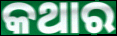
କଥାର